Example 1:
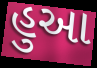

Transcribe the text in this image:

હુઆ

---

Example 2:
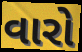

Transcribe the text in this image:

વારો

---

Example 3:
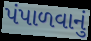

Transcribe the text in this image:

પંપાળવાનું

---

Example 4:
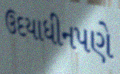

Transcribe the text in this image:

ઉદયાધીનપણે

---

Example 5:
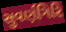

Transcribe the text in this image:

સુવર્ણગિરિ